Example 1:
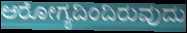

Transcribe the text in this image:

ಆರೋಗ್ಯದಿಂದಿರುವುದು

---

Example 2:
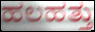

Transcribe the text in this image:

ಹಲಹತ್ತು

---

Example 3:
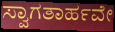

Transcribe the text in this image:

ಸ್ವಾಗತಾರ್ಹವೇ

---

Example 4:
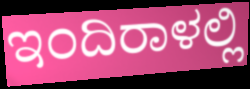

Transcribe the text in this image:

ಇಂದಿರಾಳಲ್ಲಿ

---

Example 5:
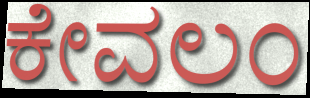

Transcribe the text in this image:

ಕೇವಲಂ